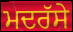
ਮਦਰੱਸੇ